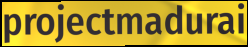
projectmadurai